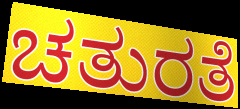
ಚತುರತೆ